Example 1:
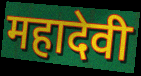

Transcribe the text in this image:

महादेवी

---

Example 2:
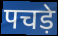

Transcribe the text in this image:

पचड़े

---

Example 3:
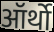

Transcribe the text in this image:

ऑर्थो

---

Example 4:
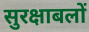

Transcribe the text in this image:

सुरक्षाबलों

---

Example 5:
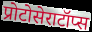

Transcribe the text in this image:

प्रोटोसेराटॉप्स